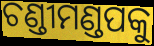
ଚଣ୍ଡୀମଣ୍ଡପକୁ